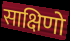
साक्षिणो